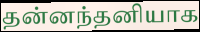
தன்னந்தனியாக